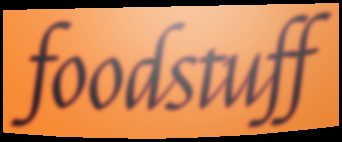
foodstuff